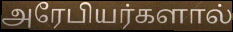
அரேபியர்களால்